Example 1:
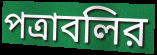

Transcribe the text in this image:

পত্রাবলির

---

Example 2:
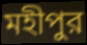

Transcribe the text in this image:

মহীপুর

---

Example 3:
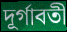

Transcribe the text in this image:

দূর্গাবতী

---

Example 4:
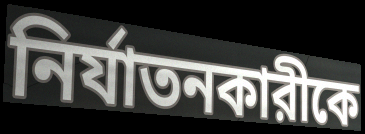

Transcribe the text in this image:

নির্যাতনকারীকে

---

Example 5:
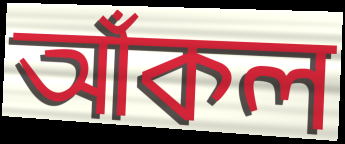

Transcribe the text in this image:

আঁকল